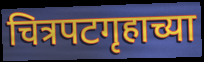
चित्रपटगृहाच्या